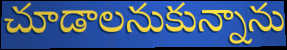
చూడాలనుకున్నాను